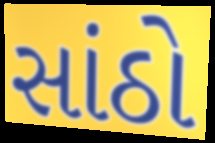
સાંઠો